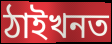
ঠাইখনত